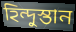
হিন্দুস্তান